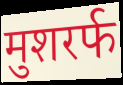
मुशरर्फ